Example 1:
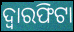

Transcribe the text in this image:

ଦ୍ୱାରଫିଟା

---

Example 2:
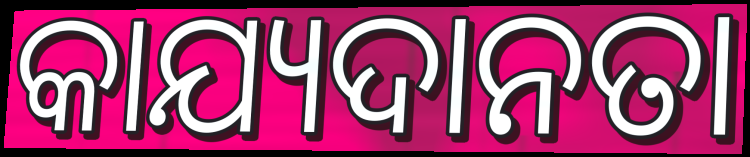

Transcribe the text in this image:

କାଯ୍ୟଦାନତା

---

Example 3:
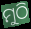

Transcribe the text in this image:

ମୁଠି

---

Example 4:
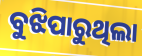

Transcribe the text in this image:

ବୁଝିପାରୁଥିଲା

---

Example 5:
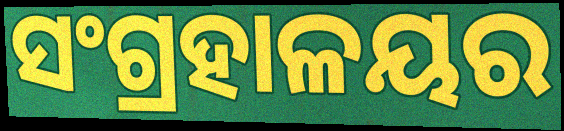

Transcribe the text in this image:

ସଂଗ୍ରହାଳୟର